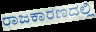
ರಾಜಕಾರಣದಲ್ಲಿ